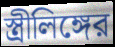
স্ত্রীলিঙ্গের